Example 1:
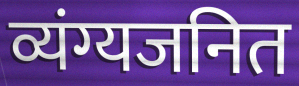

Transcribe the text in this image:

व्यंग्यजनित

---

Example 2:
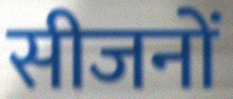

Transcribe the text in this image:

सीजनों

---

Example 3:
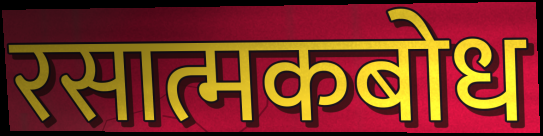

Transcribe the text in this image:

रसात्मकबोध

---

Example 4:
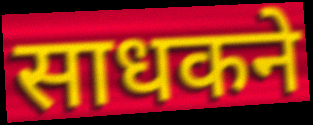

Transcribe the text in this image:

साधकने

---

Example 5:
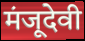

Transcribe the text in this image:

मंजूदेवी